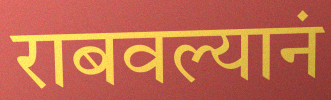
राबवल्यानं